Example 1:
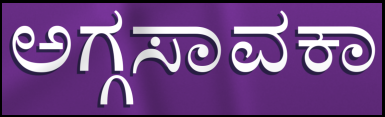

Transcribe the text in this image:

ಅಗ್ಗಸಾವಕಾ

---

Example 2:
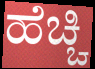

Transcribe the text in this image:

ಹೆಚ್ಚಿ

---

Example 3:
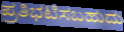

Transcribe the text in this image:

ಪ್ರತಿಭಟಿಸಬಹುದು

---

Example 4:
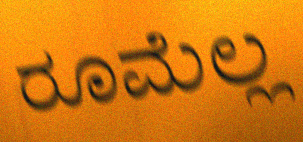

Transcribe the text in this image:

ರೂಮೆಲ್ಲ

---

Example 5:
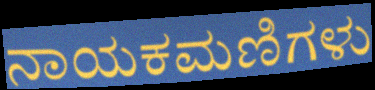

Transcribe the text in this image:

ನಾಯಕಮಣಿಗಳು